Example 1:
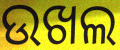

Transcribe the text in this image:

ଉଖଲ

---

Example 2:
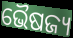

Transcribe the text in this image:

ଭୈଷଜ୍ୟ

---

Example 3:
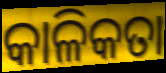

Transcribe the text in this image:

କାଳିକତା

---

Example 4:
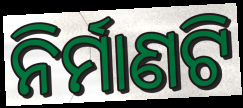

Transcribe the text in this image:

ନିର୍ମାଣଟି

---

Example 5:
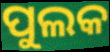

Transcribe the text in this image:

ପୁଲକ